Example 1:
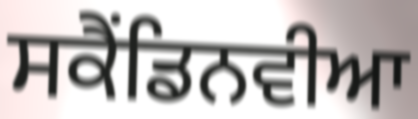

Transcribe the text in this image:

ਸਕੈਂਡਿਨਵੀਆ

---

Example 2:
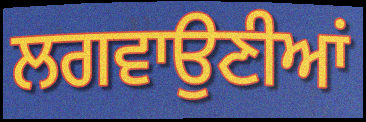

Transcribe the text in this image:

ਲਗਵਾਉਣੀਆਂ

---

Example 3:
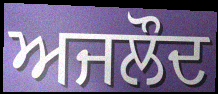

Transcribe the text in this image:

ਅਜਲੌਦ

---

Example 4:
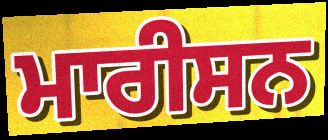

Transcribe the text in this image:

ਮਾਰੀਸਨ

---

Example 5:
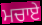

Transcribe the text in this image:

ਮਚਾਏ